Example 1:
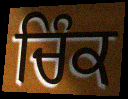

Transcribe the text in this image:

ਚਿੰਕ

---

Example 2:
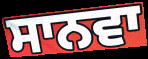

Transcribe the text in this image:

ਸਾਨਵਾ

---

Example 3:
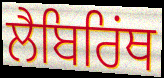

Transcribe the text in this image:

ਲੈਬਿਰਿਂਥ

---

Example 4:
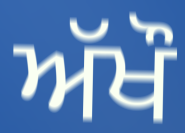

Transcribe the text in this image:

ਅੱਖੌ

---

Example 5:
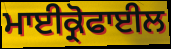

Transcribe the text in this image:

ਮਾਈਕ੍ਰੋਫਾਈਲ